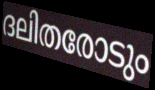
ദലിതരോടും